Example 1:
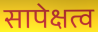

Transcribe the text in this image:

सापेक्षत्व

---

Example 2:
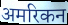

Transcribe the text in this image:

अमरिकन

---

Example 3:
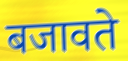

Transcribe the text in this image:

बजावते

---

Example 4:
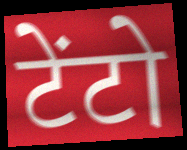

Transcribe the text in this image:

टेंटो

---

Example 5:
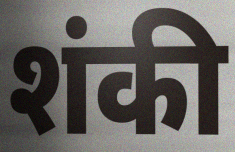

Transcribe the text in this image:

शंकी